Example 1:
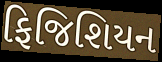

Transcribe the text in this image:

ફિજિશિયન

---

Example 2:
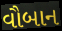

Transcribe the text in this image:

વૌબાન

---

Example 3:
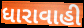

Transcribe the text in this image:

ધારાવાહી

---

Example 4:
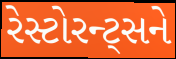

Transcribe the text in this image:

રેસ્ટોરન્ટ્સને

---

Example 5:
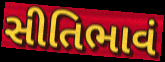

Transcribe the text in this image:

સીતિભાવં